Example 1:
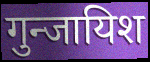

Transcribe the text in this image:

गुन्जायिश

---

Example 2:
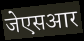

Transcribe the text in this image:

जेएसआर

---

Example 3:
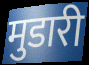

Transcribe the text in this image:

मुडारी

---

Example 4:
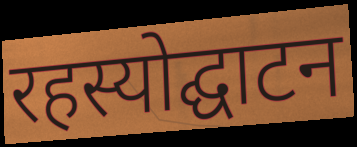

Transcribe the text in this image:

रहस्योद्घाटन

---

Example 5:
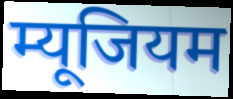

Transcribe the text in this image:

म्यूजियम